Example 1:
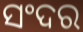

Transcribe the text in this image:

ସଂଦର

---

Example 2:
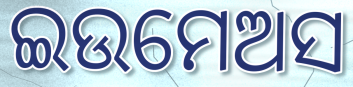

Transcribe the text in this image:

ଇଉମେଅସ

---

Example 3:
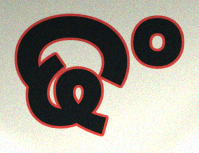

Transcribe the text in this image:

ଢଂ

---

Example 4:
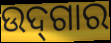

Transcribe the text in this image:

ଉଦ୍‌ଗାର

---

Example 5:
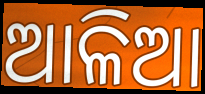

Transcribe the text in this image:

ଆଳିଆ